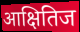
आक्षितिज